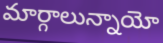
మార్గాలున్నాయో